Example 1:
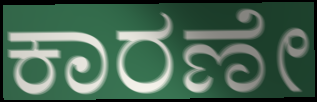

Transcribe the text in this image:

ಕಾರಣೇ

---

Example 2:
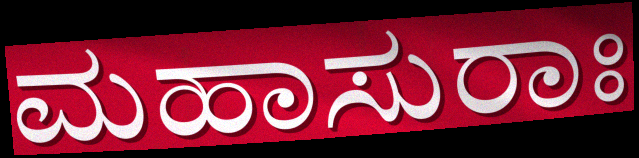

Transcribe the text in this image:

ಮಹಾಸುರಾಃ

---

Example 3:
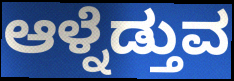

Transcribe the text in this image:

ಆಳ್ನೆಡ್ತುವ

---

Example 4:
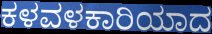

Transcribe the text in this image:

ಕಳವಳಕಾರಿಯಾದ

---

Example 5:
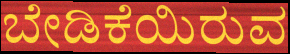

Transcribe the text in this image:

ಬೇಡಿಕೆಯಿರುವ